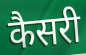
कैसरी